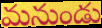
మనుండు